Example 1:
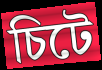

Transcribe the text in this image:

চিটে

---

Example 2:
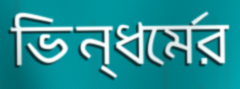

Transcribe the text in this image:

ভিন্‌ধর্মের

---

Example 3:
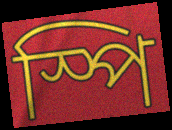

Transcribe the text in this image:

স্পি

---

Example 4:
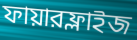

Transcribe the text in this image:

ফায়ারফ্লাইজ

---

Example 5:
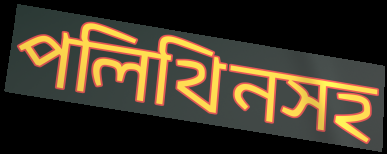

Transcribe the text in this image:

পলিথিনসহ